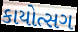
કાયોત્સગ